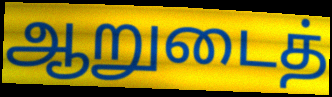
ஆறுடைத்